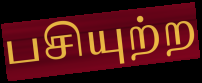
பசியுற்ற